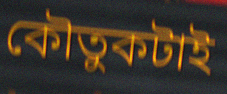
কৌতুকটাই